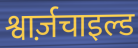
श्वार्ज़चाइल्ड